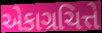
એકાગ્રચિત્તે